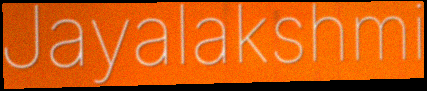
Jayalakshmi